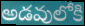
అడవులోకి